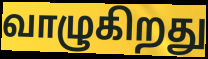
வாழுகிறது